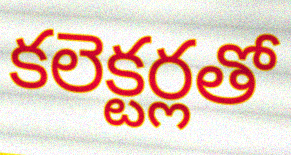
కలెక్టర్లతో